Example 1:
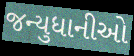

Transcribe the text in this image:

જન્યુધાનીઓ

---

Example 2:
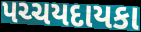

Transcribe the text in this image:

પચ્ચયદાયકા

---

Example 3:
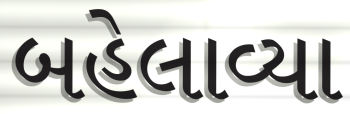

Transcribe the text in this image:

બહેલાવ્યા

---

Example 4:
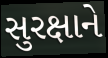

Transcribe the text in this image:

સુરક્ષાને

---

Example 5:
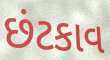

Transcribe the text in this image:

છંટકાવ